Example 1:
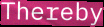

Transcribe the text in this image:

Thereby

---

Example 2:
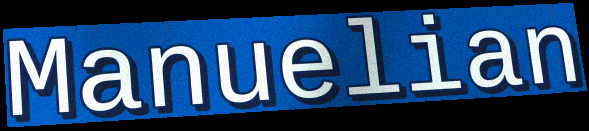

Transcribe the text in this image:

Manuelian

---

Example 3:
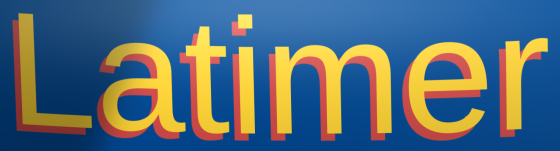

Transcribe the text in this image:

Latimer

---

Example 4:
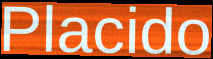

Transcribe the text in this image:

Placido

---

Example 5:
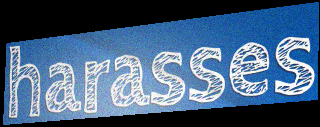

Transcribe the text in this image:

harasses